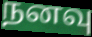
நனவு